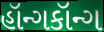
હૉન્ગકૉન્ગ